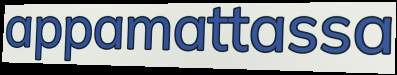
appamattassa